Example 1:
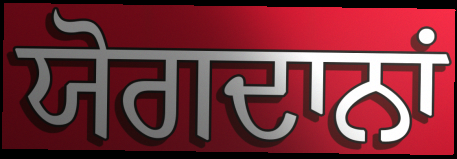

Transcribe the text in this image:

ਯੋਗਦਾਨਾਂ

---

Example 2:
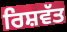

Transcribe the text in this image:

ਰਿਸ਼ਵੱਤ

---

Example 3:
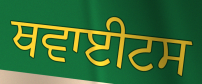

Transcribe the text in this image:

ਥਵਾਈਟਸ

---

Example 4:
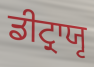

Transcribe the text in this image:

ਡੀਟ੍ਰਾਯ੍ਟ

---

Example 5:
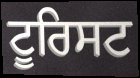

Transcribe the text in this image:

ਟੂਰਿਸਟ